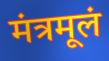
मंत्रमूलं